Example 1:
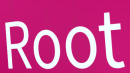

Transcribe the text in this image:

Root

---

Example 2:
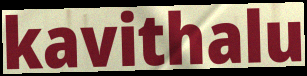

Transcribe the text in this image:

kavithalu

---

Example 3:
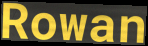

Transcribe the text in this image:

Rowan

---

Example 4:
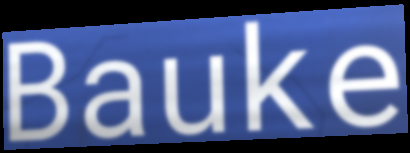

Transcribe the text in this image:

Bauke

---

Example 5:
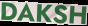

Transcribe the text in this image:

DAKSH